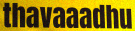
thavaaadhu